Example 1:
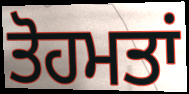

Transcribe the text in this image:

ਤੋਹਮਤਾਂ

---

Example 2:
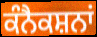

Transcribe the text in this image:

ਕੰਨੈਕਸ਼ਨਾਂ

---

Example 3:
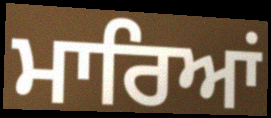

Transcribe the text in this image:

ਮਾਰਿਆਂ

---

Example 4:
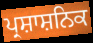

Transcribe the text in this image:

ਪ੍ਰਸ਼ਾਸ਼ਨਿਕ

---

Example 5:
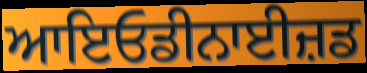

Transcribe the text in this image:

ਆਇਓਡੀਨਾਈਜ਼ਡ